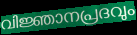
വിജ്ഞാനപ്രദവും